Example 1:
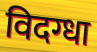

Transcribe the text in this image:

विदग्धा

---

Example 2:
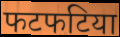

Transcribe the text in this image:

फटफटिया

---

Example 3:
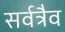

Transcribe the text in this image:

सर्वत्रैव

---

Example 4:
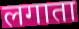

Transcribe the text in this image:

लगाता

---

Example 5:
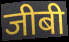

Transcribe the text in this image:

जीबी